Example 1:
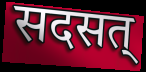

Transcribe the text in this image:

सदसत्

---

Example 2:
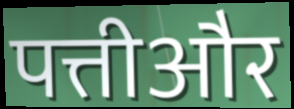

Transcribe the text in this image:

पत्तीऔर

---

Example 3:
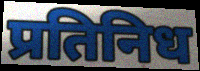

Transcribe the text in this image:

प्रतिनिध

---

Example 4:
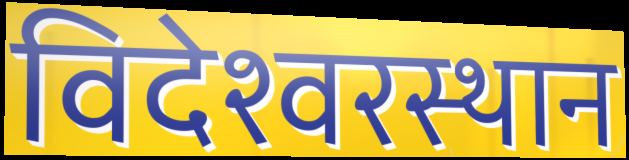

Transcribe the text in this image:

विदेश्वरस्थान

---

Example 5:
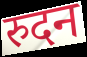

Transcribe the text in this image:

रुदन